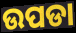
ଉପଡା